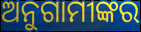
ଅନୁଗାମୀଙ୍କର